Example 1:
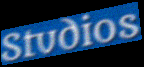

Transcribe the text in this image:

Studios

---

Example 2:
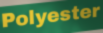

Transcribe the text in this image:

Polyester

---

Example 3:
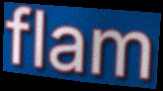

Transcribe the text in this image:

flam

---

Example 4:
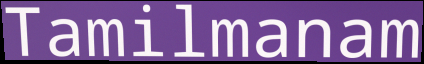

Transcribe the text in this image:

Tamilmanam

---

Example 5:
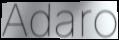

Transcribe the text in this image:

Adaro